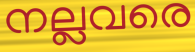
നല്ലവരെ